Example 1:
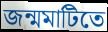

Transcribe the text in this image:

জন্মমাটিতে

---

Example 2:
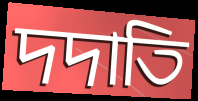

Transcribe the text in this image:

দদাতি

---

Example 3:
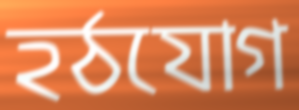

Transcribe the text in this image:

হঠযোগ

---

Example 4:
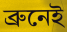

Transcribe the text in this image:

ব্রুনেই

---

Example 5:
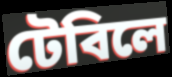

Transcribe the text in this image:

টেবিলে